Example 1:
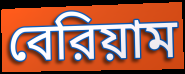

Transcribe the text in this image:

বেরিয়াম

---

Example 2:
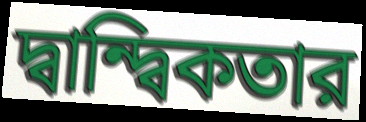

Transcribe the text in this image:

দ্বান্দ্বিকতার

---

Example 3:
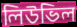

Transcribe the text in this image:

লিউভিল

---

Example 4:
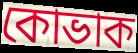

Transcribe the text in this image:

কোভাক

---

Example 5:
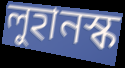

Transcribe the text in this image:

লুহানস্ক